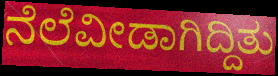
ನೆಲೆವೀಡಾಗಿದ್ದಿತು